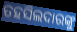
ତହସିଲଦାରଙ୍କୁ